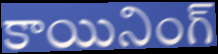
కాయినింగ్